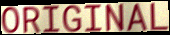
ORIGINAL